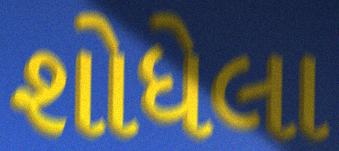
શોધેલા